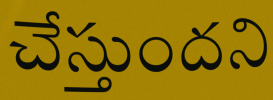
చేస్తుందని